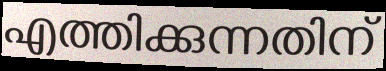
എത്തിക്കുന്നതിന്